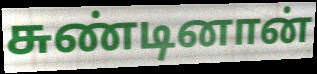
சுண்டினான்